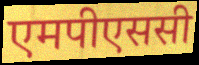
एमपीएससी